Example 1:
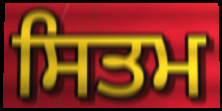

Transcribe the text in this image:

ਸਿਤਮ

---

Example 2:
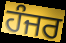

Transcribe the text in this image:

ਹੰਜਰ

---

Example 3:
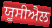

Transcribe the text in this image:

ਯੂਸੀਐਲ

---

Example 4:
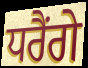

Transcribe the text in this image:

ਧਰੈਂਗੇ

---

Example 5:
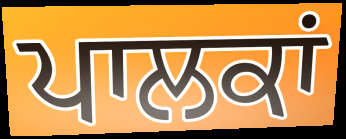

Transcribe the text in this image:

ਪਾਲਕਾਂ